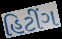
હિટીંગ